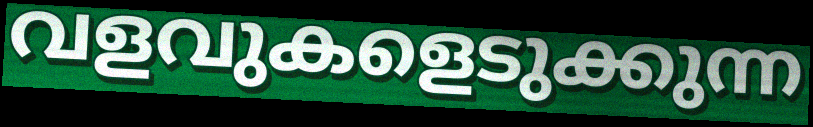
വളവുകളെടുക്കുന്ന